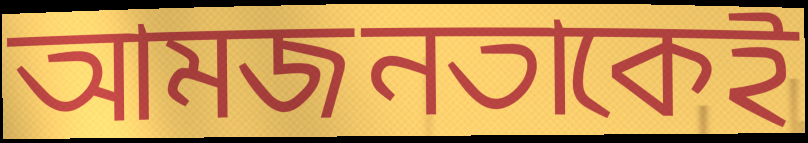
আমজনতাকেই